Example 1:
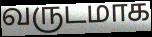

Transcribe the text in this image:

வருடமாக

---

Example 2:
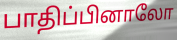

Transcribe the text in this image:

பாதிப்பினாலோ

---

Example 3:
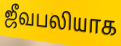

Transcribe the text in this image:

ஜீவபலியாக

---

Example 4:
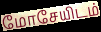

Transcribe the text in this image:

மோசேயிடம்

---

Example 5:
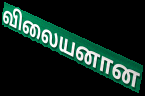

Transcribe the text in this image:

விலையனான